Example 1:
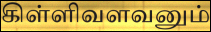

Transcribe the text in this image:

கிள்ளிவளவனும்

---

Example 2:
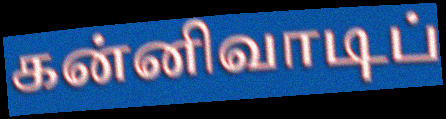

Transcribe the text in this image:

கன்னிவாடிப்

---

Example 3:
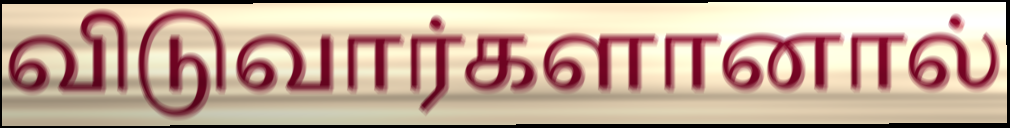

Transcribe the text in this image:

விடுவார்களானால்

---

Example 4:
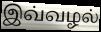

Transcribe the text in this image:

இவ்வழல்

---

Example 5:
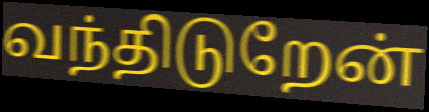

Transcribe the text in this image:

வந்திடுறேன்